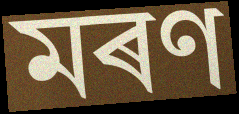
মৰণ